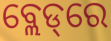
ବ୍ଲେଡ୍‌ରେ